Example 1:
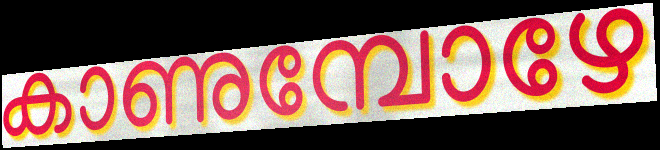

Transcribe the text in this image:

കാണുമ്പോഴേ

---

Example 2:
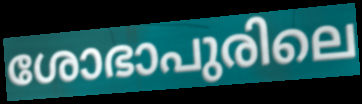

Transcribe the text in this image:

ശോഭാപുരിലെ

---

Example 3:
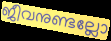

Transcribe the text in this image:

ജീവനുണ്ടല്ലോ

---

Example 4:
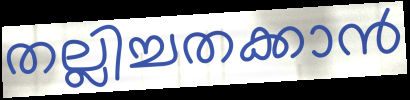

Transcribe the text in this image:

തല്ലിച്ചതക്കാൻ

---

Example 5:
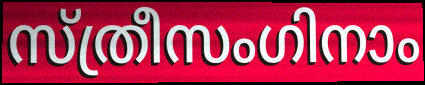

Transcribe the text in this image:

സ്ത്രീസംഗിനാം